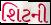
શિટની